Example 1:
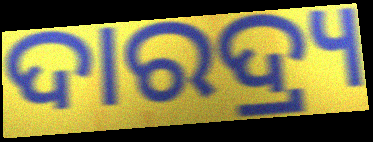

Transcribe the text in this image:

ଦାରଦ୍ର୍ୟ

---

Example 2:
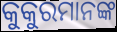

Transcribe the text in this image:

କୁକୁରମାନଙ୍କ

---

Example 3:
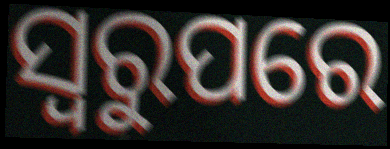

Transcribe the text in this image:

ସ୍ୱରୁପରେ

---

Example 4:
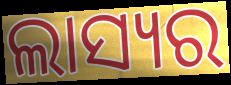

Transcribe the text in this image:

ଲାସ୍ୟର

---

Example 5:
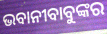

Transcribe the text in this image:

ଭବାନୀବାବୁଙ୍କର